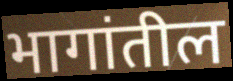
भागांतील